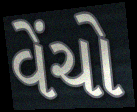
વેંચો